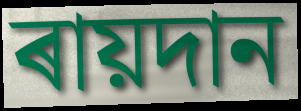
ৰায়দান